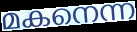
മകനെന്ന